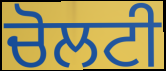
ਚੋਲਟੀ